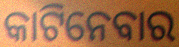
କାଟିନେବାର